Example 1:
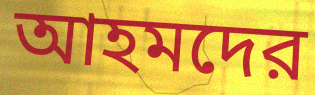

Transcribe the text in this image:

আহমদের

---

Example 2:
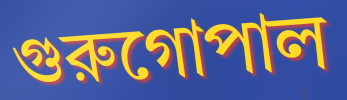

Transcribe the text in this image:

গুরুগোপাল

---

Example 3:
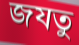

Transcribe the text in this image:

জযতু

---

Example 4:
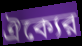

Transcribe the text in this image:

ঐক্যের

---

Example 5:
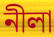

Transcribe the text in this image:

নীলা